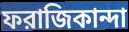
ফরাজিকান্দা